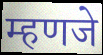
म्हणजे